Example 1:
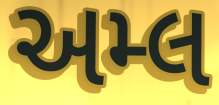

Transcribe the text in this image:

અમ્લ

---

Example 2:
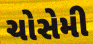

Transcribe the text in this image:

ચોસેમી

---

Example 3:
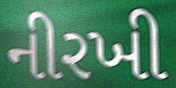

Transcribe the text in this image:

નીરખી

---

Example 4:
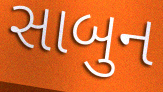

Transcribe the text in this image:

સાબુન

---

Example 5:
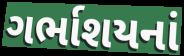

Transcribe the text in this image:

ગર્ભાશયનાં